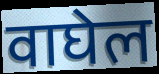
वाघेल